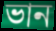
ভান